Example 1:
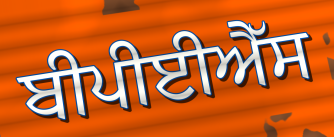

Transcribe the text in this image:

ਬੀਪੀਈਐੱਸ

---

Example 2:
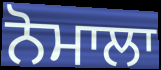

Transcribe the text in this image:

ਨੋਮਾਲਾ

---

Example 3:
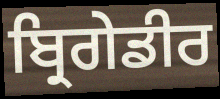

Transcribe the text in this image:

ਬ੍ਰਿਗੇਡੀਰ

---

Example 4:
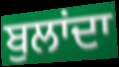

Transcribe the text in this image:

ਬੁਲਾਂਦਾ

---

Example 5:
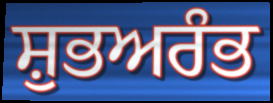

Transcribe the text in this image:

ਸ਼ੁਭਅਰੰਭ